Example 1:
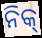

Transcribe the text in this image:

ନିକ୍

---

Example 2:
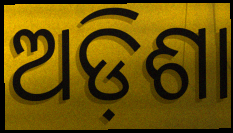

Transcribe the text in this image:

ଅଡ଼ିଶା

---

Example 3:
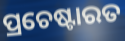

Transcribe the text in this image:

ପ୍ରଚେଷ୍ଟାରତ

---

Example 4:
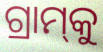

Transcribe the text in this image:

ଗ୍ରାମ୍‌କୁ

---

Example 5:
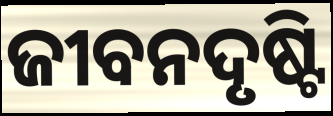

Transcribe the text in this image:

ଜୀବନଦୃଷ୍ଟି